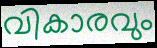
വികാരവും